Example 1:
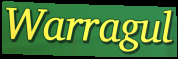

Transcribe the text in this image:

Warragul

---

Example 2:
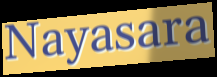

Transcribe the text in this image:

Nayasara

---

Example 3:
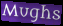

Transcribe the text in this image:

Mughs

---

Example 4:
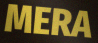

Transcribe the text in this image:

MERA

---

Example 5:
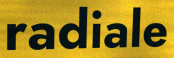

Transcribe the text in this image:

radiale